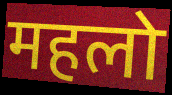
महलो